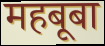
महबूबा